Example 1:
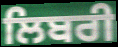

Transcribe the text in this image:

ਲਿਬਰੀ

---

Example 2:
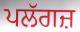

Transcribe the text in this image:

ਪਲੱਗਜ਼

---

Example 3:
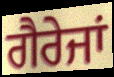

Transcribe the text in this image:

ਗੈਰੇਜਾਂ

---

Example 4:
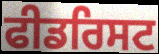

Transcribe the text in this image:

ਫੀਡਰਿਸਟ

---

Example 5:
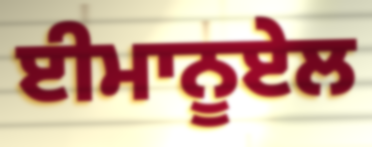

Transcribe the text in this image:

ਈਮਾਨੂਏਲ